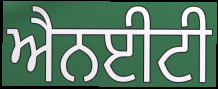
ਐਨਈਟੀ